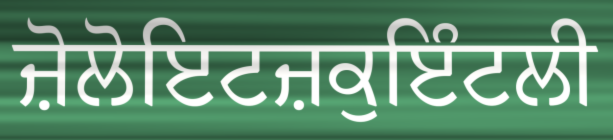
ਜ਼ੋਲੋਇਟਜ਼ਕੁਇੰਟਲੀ